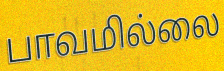
பாவமில்லை